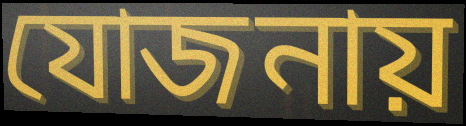
যোজনায়